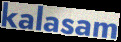
kalasam